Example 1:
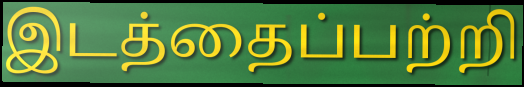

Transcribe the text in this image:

இடத்தைப்பற்றி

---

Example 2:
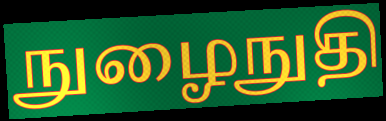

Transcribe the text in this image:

நுழைநுதி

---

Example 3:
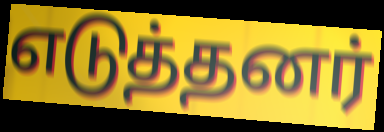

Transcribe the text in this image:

எடுத்தனர்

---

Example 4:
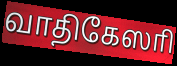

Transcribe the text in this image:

வாதிகேஸரி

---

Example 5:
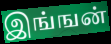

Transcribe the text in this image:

இங்ஙன்